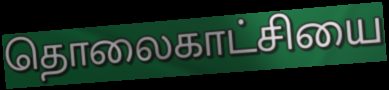
தொலைகாட்சியை